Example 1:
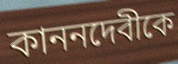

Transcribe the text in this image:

কাননদেবীকে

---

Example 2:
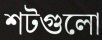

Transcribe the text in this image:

শটগুলো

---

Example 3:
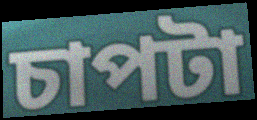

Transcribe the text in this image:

চাপটা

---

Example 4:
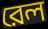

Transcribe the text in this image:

রেল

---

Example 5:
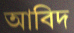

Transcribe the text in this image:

আবিদ